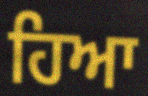
ਹਿਆ